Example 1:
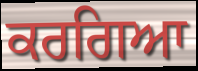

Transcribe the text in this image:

ਕਰਗਿਆ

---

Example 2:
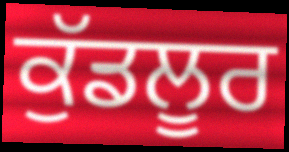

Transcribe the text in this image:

ਕੁੱਡਲੂਰ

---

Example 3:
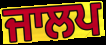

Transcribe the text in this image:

ਜਾਲਪ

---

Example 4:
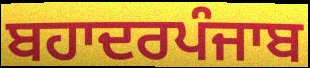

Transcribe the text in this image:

ਬਹਾਦਰਪੰਜਾਬ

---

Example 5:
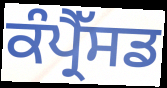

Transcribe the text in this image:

ਕੰਪ੍ਰੈੱਸਡ